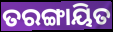
ତରଙ୍ଗାୟିତ